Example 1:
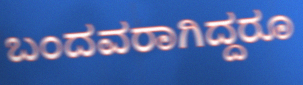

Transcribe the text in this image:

ಬಂದವರಾಗಿದ್ದರೂ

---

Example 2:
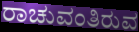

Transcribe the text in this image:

ರಾಚುವಂತಿರುವ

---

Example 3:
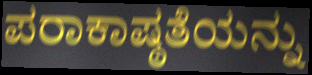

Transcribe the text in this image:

ಪರಾಕಾಷ್ಠತೆಯನ್ನು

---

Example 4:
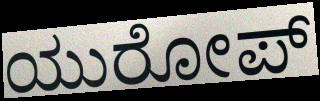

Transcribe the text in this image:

ಯುರೋಪ್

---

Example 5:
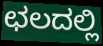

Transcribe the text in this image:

ಛಲದಲ್ಲಿ